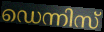
ഡെന്നിസ്